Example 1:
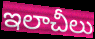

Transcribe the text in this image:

ఇలాచీలు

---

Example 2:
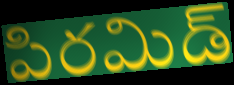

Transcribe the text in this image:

పిరమిడ్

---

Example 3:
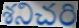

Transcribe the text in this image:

శనిచరి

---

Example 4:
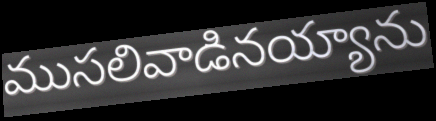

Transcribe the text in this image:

ముసలివాడినయ్యాను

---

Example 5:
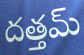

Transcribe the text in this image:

దత్తమ్